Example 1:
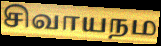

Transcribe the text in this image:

சிவாயநம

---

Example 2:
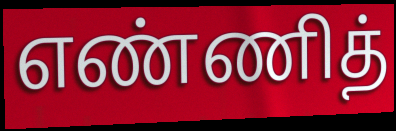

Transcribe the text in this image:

எண்ணித்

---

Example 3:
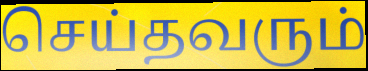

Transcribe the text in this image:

செய்தவரும்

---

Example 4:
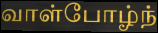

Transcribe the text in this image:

வாள்போழ்ந்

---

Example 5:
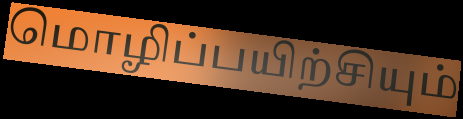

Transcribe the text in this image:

மொழிப்பயிற்சியும்